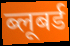
ब्लूबर्ड